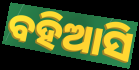
ବହିଆସି